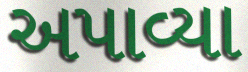
અપાવ્યા